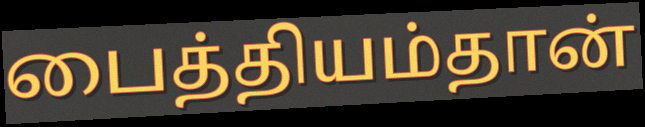
பைத்தியம்தான்